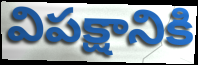
విపక్షానికి